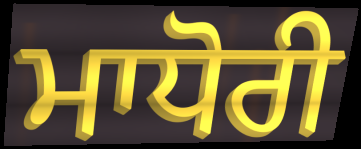
ਮਾਧੋਰੀ